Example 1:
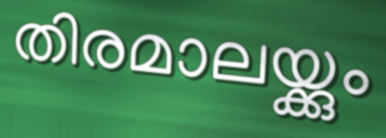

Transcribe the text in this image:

തിരമാലയ്ക്കും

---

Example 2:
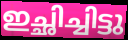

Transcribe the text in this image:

ഇച്ഛിച്ചിട്ടു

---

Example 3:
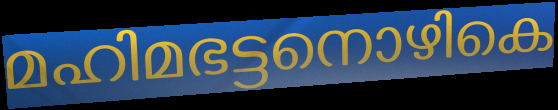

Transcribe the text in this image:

മഹിമഭട്ടനൊഴികെ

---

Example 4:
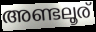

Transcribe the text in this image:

അണ്ടലൂര്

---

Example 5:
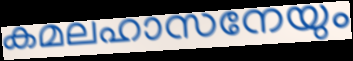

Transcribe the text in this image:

കമലഹാസനേയും